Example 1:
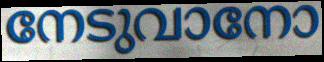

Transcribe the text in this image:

നേടുവാനോ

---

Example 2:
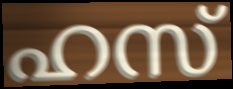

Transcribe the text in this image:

ഹസ്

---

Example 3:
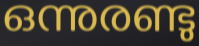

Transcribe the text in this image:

ഒന്നുരണ്ടു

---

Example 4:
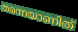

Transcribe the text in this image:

തന്നെയാണിത്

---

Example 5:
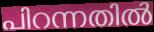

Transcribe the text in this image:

പിറന്നതിൽ